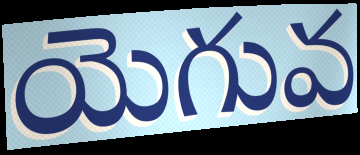
యెగువ